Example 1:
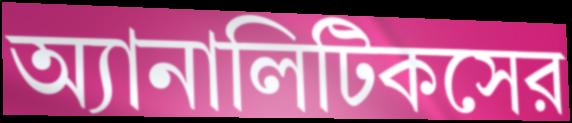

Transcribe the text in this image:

অ্যানালিটিকসের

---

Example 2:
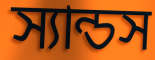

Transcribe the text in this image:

স্যান্ডস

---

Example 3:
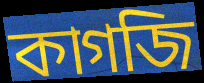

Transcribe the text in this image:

কাগজি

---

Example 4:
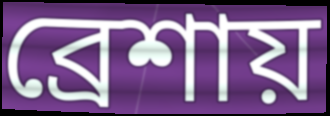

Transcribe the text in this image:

ব্রেশায়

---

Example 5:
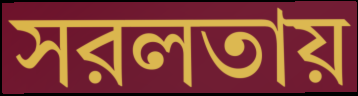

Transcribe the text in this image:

সরলতায়